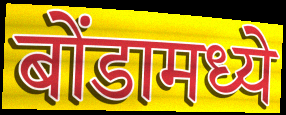
बोंडामध्ये